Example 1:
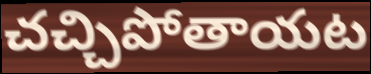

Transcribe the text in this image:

చచ్చిపోతాయట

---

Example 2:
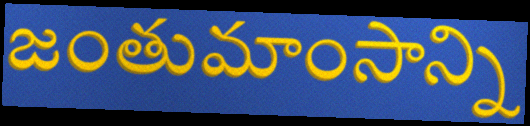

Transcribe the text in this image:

జంతుమాంసాన్ని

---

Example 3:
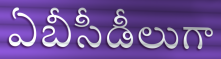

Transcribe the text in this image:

ఏబీసీడీలుగా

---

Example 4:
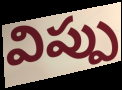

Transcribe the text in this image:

విప్పు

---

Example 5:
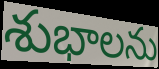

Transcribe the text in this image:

శుభాలను